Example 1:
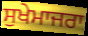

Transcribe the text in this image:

ਸੁਖੇਮਾਜਰਾ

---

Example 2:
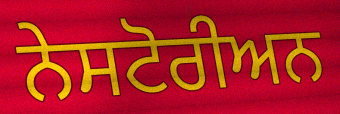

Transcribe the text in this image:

ਨੇਸਟੋਰੀਅਨ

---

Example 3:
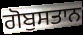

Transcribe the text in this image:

ਗੋਬੁਸਤਾਨ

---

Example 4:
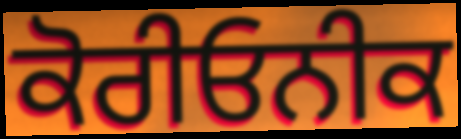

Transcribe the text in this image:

ਕੋਰੀਓਨੀਕ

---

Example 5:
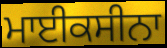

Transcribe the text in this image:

ਮਾਈਕਸੀਨਾ